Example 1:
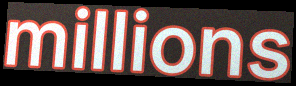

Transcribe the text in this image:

millions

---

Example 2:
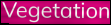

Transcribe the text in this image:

Vegetation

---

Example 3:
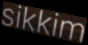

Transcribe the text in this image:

sikkim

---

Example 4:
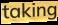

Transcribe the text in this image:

taking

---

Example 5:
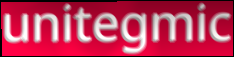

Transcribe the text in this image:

unitegmic